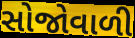
સોજોવાળી